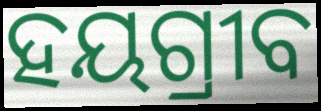
ହୟଗ୍ରୀବ